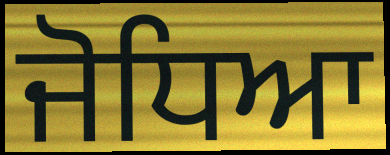
ਜੋਧਿਆ